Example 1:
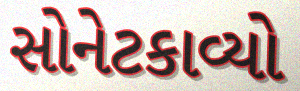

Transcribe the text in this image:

સોનેટકાવ્યો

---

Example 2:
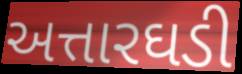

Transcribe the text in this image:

અત્તારઘડી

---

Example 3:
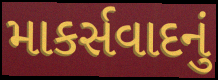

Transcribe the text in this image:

માકર્સવાદનું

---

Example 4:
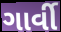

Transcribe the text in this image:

ગાર્વી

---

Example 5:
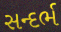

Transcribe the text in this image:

સન્દર્ભ